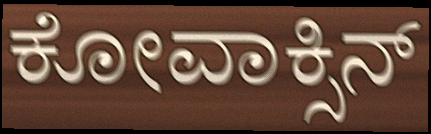
ಕೋವಾಕ್ಸಿನ್